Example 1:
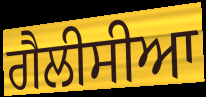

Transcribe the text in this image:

ਗੈਲੀਸੀਆ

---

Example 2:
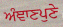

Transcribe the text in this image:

ਅੰਞਾਣਪੁਣੇ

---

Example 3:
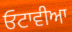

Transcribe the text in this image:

ਓਟਾਵੀਆ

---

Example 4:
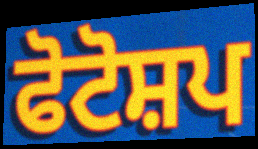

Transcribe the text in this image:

ਫੋਟੋਸ਼ਪ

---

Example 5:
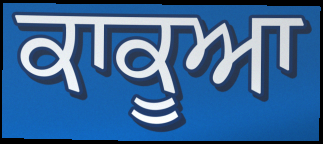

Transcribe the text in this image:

ਕਾਕੂਆ